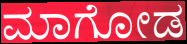
ಮಾಗೋಡ